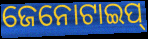
ଜେନୋଟାଇପ୍